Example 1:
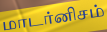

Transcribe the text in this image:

மாடர்னிசம்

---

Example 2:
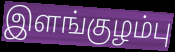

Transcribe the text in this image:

இளங்குழம்பு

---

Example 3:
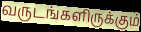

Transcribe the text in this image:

வருடங்களிருக்கும்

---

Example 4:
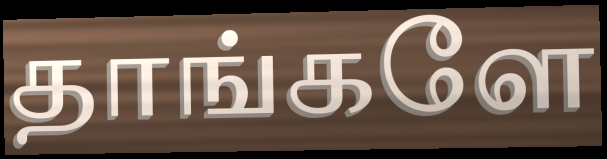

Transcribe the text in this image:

தாங்களே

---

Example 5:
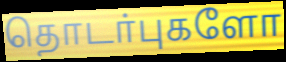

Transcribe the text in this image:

தொடர்புகளோ